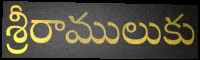
శ్రీరాములుకు